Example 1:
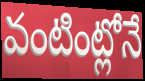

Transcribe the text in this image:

వంటింట్లోనే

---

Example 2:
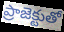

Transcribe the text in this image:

ప్రాజెక్టుతో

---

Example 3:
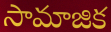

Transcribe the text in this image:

సామాజిక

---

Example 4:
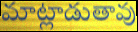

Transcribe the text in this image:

మాట్లాడుతావు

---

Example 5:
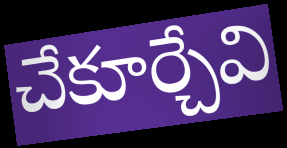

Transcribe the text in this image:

చేకూర్చేవి